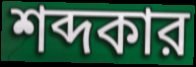
শব্দকার